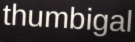
thumbigal